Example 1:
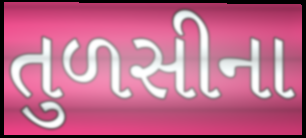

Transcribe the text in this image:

તુળસીના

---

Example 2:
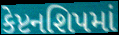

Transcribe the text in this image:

કેપ્ટનશિપમાં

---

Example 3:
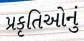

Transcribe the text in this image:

પ્રકૃતિઓનું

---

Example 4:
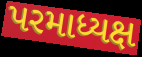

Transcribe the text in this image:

પરમાધ્યક્ષ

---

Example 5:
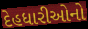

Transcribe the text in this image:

દેહધારીઓનો